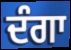
ਦੰਗਾ